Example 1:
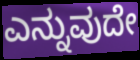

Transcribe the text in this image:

ಎನ್ನುವುದೇ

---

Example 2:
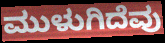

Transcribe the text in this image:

ಮುಳುಗಿದೆವು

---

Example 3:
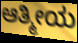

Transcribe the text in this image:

ಆತ್ಮೀಯ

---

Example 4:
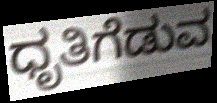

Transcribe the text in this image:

ಧೃತಿಗೆಡುವ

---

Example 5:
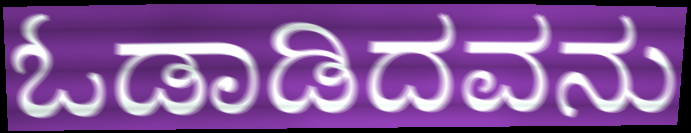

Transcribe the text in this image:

ಓಡಾಡಿದವನು